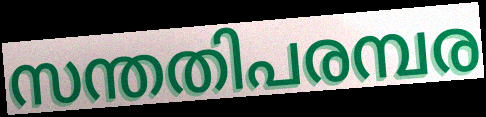
സന്തതിപരമ്പര